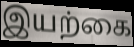
இயற்கை